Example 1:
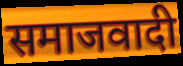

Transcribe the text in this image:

समाजवादी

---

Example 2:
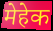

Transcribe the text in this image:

मेहेक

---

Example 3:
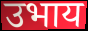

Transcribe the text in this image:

उभाय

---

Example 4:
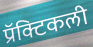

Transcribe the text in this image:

प्रॅक्टिकली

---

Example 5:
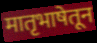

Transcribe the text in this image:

मातृभाषेतून